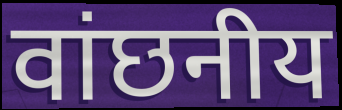
वांछनीय